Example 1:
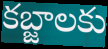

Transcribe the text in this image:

కబ్జాలకు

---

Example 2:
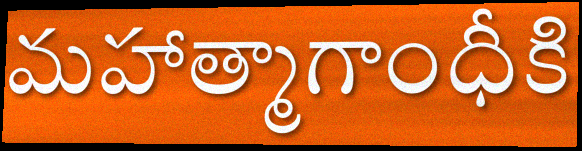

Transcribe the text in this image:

మహాత్మాగాంధీకి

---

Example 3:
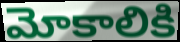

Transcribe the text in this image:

మోకాలికి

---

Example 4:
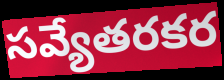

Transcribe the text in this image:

సవ్యేతరకర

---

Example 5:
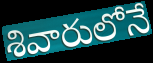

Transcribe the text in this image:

శివారులోనే